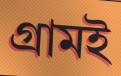
গ্রামই